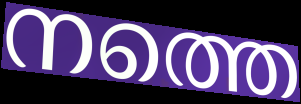
നത്തെ